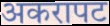
अकरापट